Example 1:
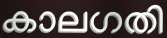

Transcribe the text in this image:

കാലഗതി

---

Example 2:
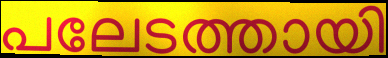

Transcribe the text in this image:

പലേടത്തായി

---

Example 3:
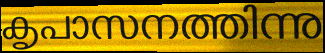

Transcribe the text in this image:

കൃപാസനത്തിന്നു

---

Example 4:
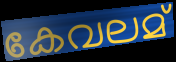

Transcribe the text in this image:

കേവലമ്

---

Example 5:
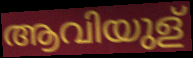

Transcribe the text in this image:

ആവിയുള്